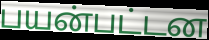
பயன்பட்டன